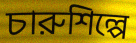
চারুশিল্পে